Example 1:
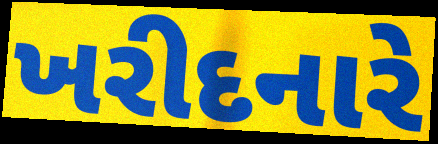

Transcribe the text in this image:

ખરીદનારે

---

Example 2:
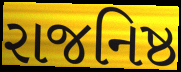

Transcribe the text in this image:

રાજનિષ્ઠ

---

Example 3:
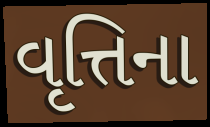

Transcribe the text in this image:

વૃત્તિના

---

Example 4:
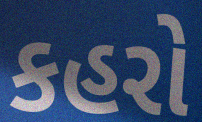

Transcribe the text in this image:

કહરો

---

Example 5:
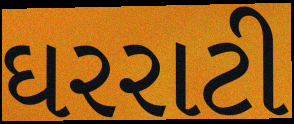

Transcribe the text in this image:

ઘરરાટી